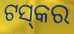
ଟସ୍‍କର